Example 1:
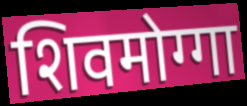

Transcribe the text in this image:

शिवमोग्गा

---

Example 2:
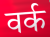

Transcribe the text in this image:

वर्क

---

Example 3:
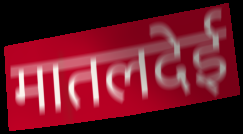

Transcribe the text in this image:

मातलदेई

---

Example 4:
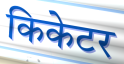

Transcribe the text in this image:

किकेटर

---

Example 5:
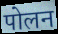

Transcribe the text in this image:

पोलन